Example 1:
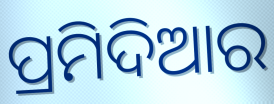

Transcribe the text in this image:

ପ୍ରମିଦିଆର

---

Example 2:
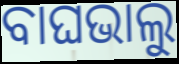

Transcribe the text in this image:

ବାଘଭାଲୁ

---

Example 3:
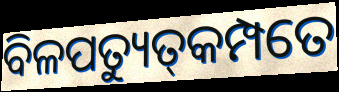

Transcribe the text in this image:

ବିଳପତ୍ୟୁତ୍‌କମ୍ପତେ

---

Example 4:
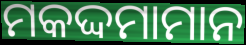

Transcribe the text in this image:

ମକଦ୍ଦମାମାନ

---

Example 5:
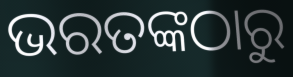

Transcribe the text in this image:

ଭରତଙ୍କଠାରୁ